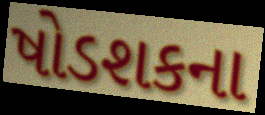
ષોડશકના